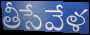
తీసేవేళ